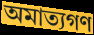
অমাত্যগণ